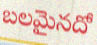
బలమైనదో